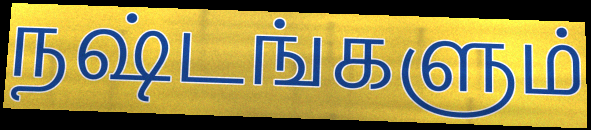
நஷ்டங்களும்